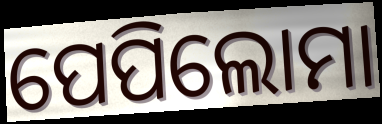
ପେପିଲୋମା